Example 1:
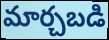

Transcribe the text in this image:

మార్చబడి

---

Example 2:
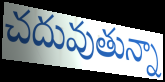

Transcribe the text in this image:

చదువుతున్నా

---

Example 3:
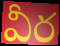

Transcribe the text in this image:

వీర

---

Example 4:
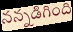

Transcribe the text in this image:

నన్నడిగింది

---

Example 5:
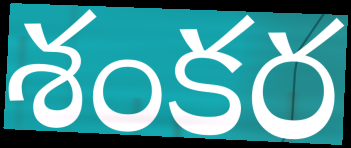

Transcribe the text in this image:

శంకర